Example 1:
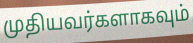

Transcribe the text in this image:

முதியவர்களாகவும்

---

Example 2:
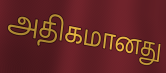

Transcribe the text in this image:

அதிகமானது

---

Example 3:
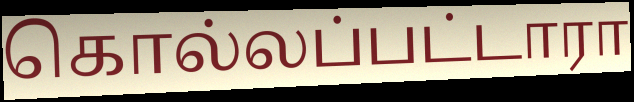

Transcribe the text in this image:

கொல்லப்பட்டாரா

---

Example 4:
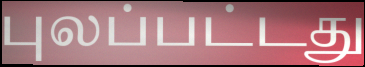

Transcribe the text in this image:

புலப்பட்டது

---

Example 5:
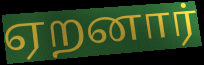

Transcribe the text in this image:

ஏறனார்